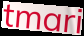
tmari